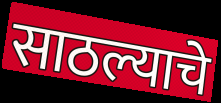
साठल्याचे